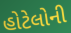
હોટેલોની